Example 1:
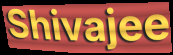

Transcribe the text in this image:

Shivajee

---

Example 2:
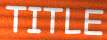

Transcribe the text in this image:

TITLE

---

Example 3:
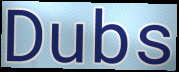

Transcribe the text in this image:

Dubs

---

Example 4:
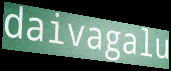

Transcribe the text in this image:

daivagalu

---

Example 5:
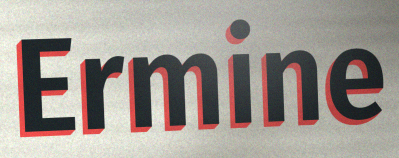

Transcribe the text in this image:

Ermine